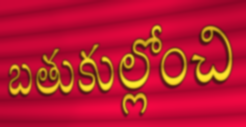
బతుకుల్లోంచి